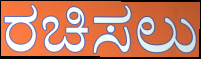
ರಚಿಸಲು